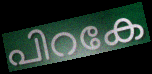
പിറകേ